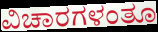
ವಿಚಾರಗಳಂತೂ